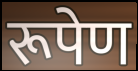
रूपेण